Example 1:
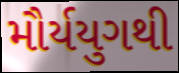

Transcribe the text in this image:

મૌર્યયુગથી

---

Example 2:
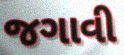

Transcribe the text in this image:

જગાવી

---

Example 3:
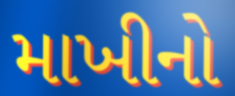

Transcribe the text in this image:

માખીનો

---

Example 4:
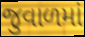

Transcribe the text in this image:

જુવાળમાં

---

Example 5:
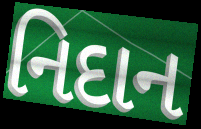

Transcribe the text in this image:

નિદાન